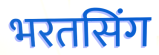
भरतसिंग